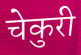
चेकुरी